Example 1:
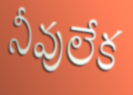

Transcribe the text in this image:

నీవులేక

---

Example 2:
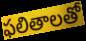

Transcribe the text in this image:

ఫలితాలతో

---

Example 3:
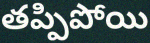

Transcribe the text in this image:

తప్పిపోయి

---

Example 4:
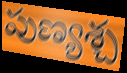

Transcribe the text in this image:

పుణ్యశ్చ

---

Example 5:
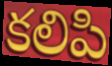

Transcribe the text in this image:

కలిపి